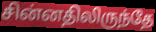
சின்னதிலிருந்தே